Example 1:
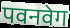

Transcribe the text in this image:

पवनवेग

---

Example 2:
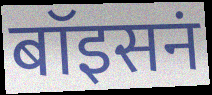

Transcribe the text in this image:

बॉइसनं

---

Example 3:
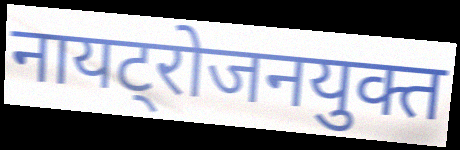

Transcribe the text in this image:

नायट्रोजनयुक्त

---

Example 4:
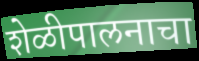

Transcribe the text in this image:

शेळीपालनाचा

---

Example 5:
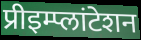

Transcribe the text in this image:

प्रीइम्प्लांटेशन